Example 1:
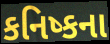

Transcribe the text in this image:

કનિષ્કના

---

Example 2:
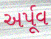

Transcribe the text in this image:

અર્પૂવ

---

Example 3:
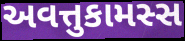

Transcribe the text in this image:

અવત્તુકામસ્સ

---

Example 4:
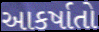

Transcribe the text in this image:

આકર્ષાતો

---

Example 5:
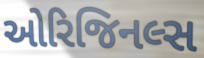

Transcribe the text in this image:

ઓરિજિનલ્સ